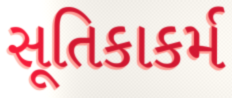
સૂતિકાકર્મ